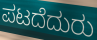
ಪಟದೆದುರು